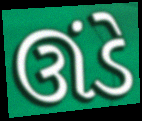
ઊંડે